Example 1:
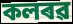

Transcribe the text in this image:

কলৰৱ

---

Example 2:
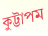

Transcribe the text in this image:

কুট্টাপম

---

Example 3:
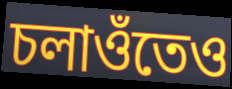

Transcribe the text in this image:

চলাওঁতেও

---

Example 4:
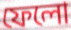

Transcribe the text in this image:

ফেলো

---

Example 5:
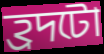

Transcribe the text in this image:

হ্ৰদটো